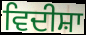
ਵਿਦੀਸ਼ਾ